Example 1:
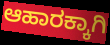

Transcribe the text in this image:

ಆಹಾರಕ್ಕಾಗಿ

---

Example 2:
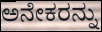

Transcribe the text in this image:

ಅನೇಕರನ್ನು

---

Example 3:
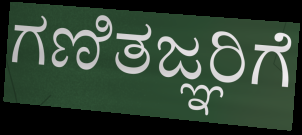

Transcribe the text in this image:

ಗಣಿತಜ್ಞರಿಗೆ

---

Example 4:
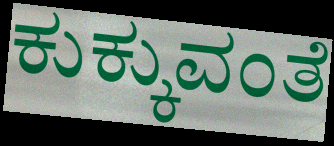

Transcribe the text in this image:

ಕುಕ್ಕುವಂತೆ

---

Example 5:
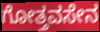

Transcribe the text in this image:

ಗೋತ್ತವಸೇನ